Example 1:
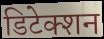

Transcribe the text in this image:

डिटेक्शन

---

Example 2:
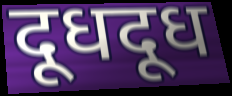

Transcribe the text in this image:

दूधदूध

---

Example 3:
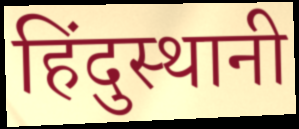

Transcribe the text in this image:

हिंदुस्थानी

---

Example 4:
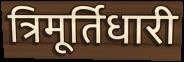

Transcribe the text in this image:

त्रिमूर्तिधारी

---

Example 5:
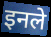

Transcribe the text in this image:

इनले